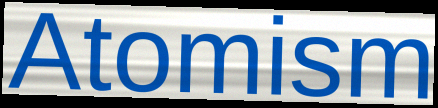
Atomism